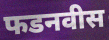
फडनवीस